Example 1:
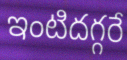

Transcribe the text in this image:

ఇంటిదగ్గరే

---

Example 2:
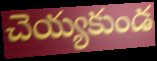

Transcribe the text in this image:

చెయ్యకుండ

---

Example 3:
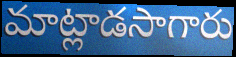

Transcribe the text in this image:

మాట్లాడసాగారు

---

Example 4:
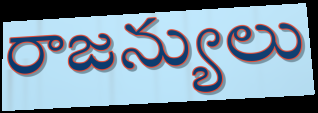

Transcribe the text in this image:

రాజన్యులు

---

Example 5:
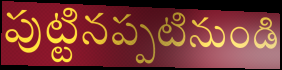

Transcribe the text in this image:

పుట్టినప్పటినుండి